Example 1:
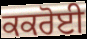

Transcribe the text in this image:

ਕਕਰੋਈ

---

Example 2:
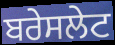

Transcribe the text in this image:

ਬਰੇਸਲੇਟ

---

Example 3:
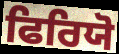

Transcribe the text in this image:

ਫਿਰਿਯੋ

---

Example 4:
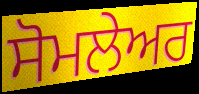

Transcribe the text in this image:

ਸੋਮਲੇਅਰ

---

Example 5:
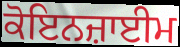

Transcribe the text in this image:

ਕੋਇਨਜ਼ਾਈਮ